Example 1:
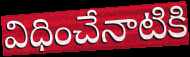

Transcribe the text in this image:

విధించేనాటికి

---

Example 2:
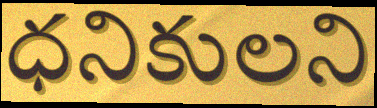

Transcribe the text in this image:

ధనికులని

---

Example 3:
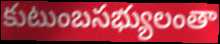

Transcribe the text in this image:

కుటుంబసభ్యులంతా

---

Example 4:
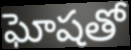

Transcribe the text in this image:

ఘోషతో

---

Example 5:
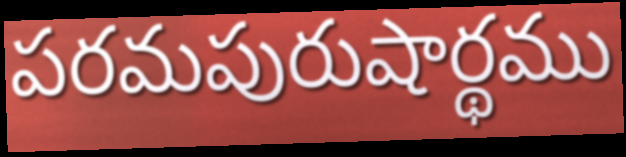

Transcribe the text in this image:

పరమపురుషార్థము